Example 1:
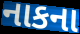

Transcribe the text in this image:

નાકના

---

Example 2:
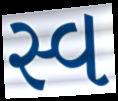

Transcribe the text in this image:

સ્વ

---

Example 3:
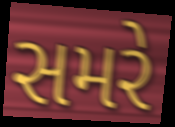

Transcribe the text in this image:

સમરે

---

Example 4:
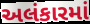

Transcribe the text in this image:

અલંકારમાં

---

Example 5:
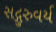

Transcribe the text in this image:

સદ્ગુરુવર્ય